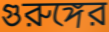
গুরুঙ্গের